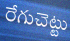
రేగుచెట్టు